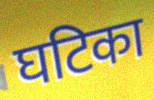
घटिका